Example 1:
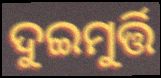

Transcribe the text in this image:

ଦୁଇମୁର୍ତ୍ତି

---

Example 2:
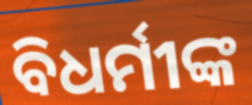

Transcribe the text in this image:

ବିଧର୍ମୀଙ୍କ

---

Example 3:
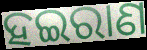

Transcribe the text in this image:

ହଇରାଣ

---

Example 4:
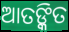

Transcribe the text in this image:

ଆତଙ୍କିତ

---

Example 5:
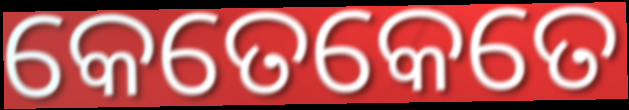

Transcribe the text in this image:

କେତେକେତେ